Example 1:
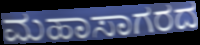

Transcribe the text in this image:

ಮಹಾಸಾಗರದ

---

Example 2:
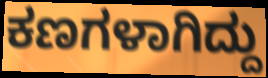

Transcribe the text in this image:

ಕಣಗಳಾಗಿದ್ದು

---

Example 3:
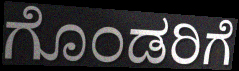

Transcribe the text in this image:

ಗೊಂಡರಿಗೆ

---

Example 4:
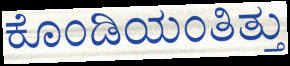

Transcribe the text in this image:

ಕೊಂಡಿಯಂತಿತ್ತು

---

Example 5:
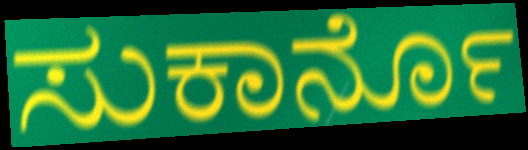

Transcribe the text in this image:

ಸುಕಾರ್ನೊ